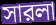
সারলা